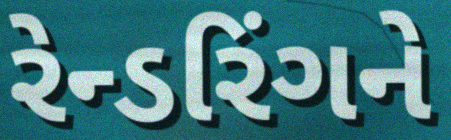
રેન્ડરિંગને